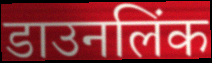
डाउनलिंक